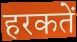
हरकतें